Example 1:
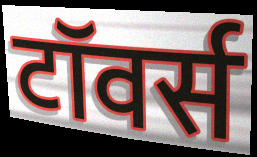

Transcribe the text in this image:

टॉवर्स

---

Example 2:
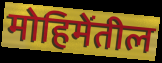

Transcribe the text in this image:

मोहिमेंतील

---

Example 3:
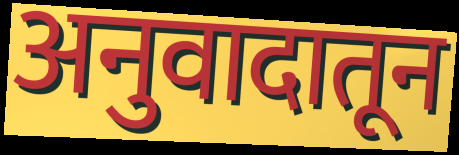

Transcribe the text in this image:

अनुवादातून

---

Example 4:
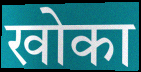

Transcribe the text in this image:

खोका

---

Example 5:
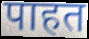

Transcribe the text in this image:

पाहत